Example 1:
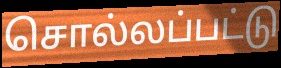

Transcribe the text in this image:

சொல்லப்பட்டு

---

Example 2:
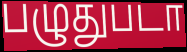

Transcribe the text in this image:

பழுதுபடா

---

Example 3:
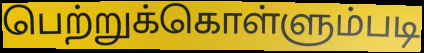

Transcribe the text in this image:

பெற்றுக்கொள்ளும்படி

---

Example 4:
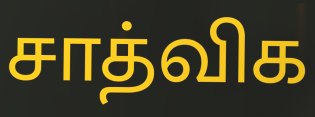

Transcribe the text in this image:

சாத்விக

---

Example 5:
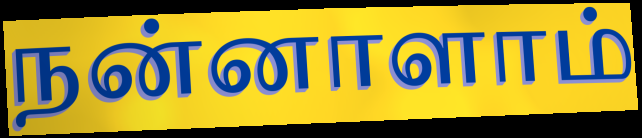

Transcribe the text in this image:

நன்னாளாம்